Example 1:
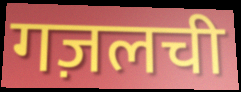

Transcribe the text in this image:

गज़लची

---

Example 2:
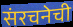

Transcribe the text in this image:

संरचनेची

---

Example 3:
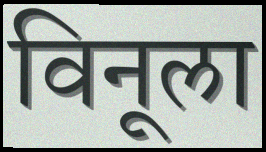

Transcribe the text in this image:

विनूला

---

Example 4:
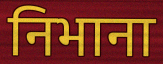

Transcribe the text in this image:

निभाना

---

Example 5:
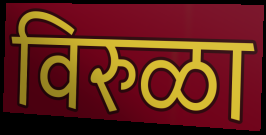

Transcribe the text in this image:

विरुळा